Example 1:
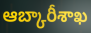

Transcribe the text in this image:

ఆబ్కారీశాఖ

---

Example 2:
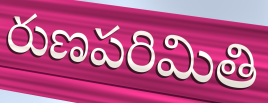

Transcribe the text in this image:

రుణపరిమితి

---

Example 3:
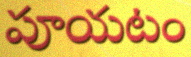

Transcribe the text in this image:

పూయటం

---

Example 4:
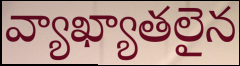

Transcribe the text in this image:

వ్యాఖ్యాతలైన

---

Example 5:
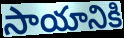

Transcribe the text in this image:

సాయానికి